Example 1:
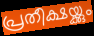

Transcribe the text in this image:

പ്രതീക്ഷയ്ക്കും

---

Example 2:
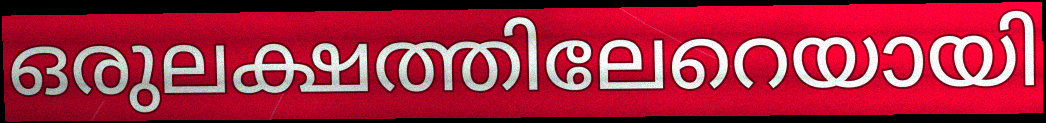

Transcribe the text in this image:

ഒരുലക്ഷത്തിലേറെയായി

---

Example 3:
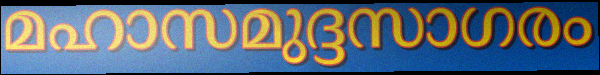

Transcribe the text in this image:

മഹാസമുദ്ദസാഗരം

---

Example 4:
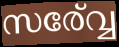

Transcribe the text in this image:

സര്വ്വേ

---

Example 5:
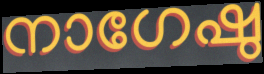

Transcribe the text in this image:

നാഗേഷു